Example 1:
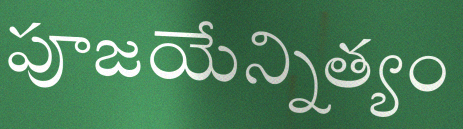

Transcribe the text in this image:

పూజయేన్నిత్యం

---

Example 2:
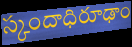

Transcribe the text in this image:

స్కందాధిరూఢాం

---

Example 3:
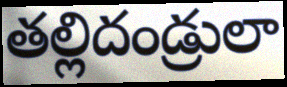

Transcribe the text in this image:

తల్లిదండ్రులా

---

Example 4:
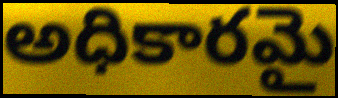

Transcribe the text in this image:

అధికారమై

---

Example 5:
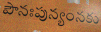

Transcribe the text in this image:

పౌనఃపున్యంనకు